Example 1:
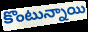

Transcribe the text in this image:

కొంటున్నాయి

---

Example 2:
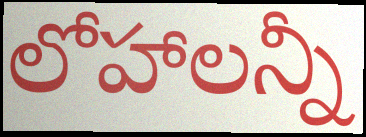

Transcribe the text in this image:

లోహాలన్నీ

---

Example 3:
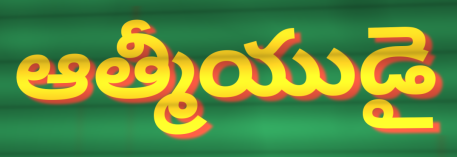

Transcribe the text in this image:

ఆత్మీయుడై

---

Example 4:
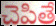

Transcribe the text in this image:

చెపితే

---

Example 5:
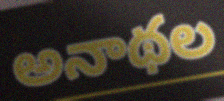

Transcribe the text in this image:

అనాథల